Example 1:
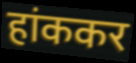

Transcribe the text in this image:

हांककर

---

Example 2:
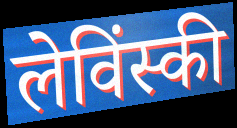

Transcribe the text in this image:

लेविंस्की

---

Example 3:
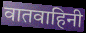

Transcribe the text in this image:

वातवाहिनी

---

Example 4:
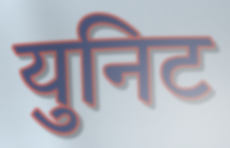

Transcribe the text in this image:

युनिट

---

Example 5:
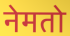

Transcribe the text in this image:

नेमतो